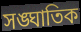
সঙ্ঘাতিক